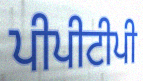
ਪੀਪੀਟੀਪੀ